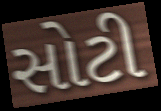
સોટી